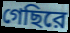
গেছিরে